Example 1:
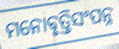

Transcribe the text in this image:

ମନୋବୃତ୍ତିସଂପନ୍ନ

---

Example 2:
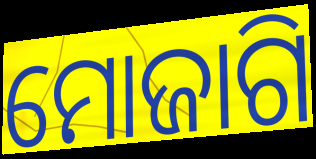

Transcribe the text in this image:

ମୋଜାଗି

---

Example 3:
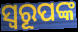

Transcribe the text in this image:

ସ୍ୱରୂପଙ୍କ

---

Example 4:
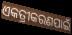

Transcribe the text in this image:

ଏକତ୍ରୀକରଣପାଇଁ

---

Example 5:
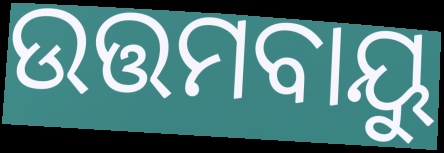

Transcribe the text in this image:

ଉତ୍ତମବାୟୁ